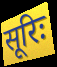
सूरिः